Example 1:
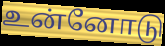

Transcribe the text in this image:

உன்னோடு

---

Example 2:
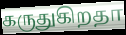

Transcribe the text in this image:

கருதுகிறதா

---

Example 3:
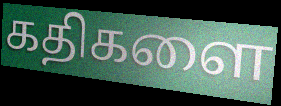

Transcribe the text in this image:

கதிகளை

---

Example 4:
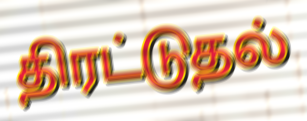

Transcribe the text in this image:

திரட்டுதல்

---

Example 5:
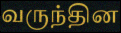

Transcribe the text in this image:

வருந்தின